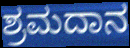
ಶ್ರಮದಾನ